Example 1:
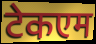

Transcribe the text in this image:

टेकएम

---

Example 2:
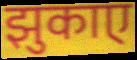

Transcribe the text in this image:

झुकाए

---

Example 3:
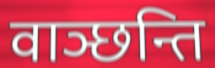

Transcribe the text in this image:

वाञ्छन्ति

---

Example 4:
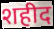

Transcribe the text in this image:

शहीद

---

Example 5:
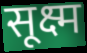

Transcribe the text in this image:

सूक्ष्म